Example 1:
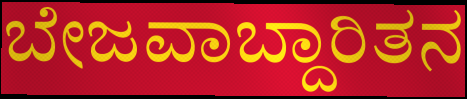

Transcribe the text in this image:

ಬೇಜವಾಬ್ದಾರಿತನ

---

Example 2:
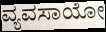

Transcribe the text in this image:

ವ್ಯವಸಾಯೋ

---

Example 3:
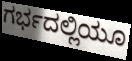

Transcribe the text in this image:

ಗರ್ಭದಲ್ಲಿಯೂ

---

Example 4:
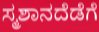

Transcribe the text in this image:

ಸ್ಮಶಾನದೆಡೆಗೆ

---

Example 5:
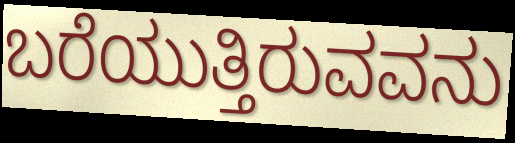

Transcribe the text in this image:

ಬರೆಯುತ್ತಿರುವವನು